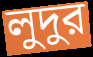
লুদুর